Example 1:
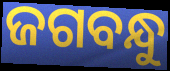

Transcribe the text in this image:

ଜଗବନ୍ଧୁ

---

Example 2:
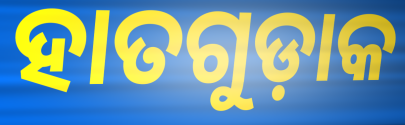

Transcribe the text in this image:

ହାତଗୁଡ଼ାକ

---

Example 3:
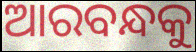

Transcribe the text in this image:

ଆରବନ୍ଧକୁ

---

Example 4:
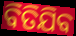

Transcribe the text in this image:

ବିତିଯିବ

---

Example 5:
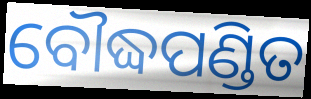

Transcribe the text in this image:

ବୌଦ୍ଧପଣ୍ଡିତ